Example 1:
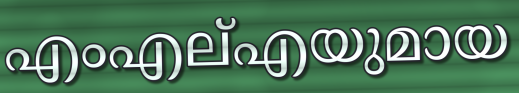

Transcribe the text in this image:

എംഎല്എയുമായ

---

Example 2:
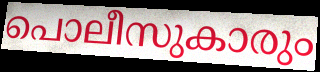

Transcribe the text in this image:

പൊലീസുകാരും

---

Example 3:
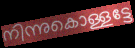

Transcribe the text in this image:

നിന്നുകൊള്ളട്ടേ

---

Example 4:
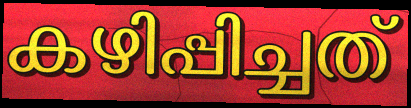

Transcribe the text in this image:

കഴിപ്പിച്ചത്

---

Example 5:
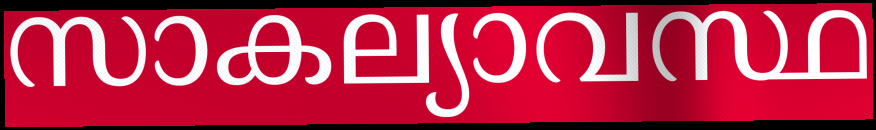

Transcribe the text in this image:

സാകല്യാവസ്ഥ